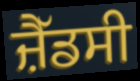
ਜ਼ੈੱਡਸੀ